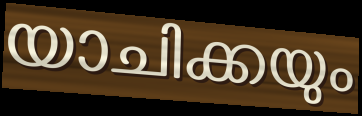
യാചിക്കയും